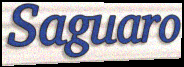
Saguaro